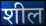
शील